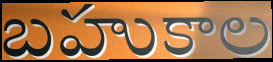
బహుకాల